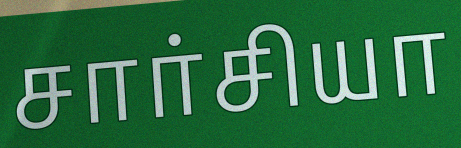
சார்சியா